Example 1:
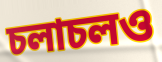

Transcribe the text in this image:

চলাচলও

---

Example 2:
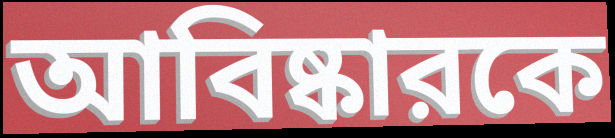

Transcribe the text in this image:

আবিষ্কারকে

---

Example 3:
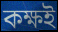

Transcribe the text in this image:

কক্ষই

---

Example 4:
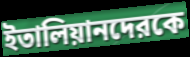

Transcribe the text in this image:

ইতালিয়ানদেরকে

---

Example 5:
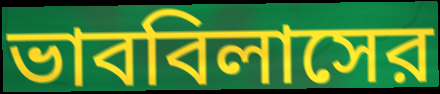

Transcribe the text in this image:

ভাববিলাসের